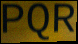
PQR